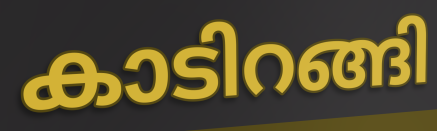
കാടിറങ്ങി